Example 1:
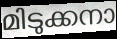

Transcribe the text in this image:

മിടുക്കനാ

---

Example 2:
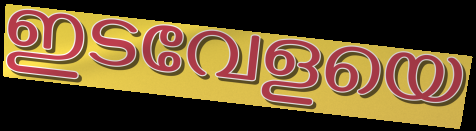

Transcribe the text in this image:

ഇടവേളയെ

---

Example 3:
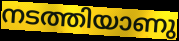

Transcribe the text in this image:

നടത്തിയാണു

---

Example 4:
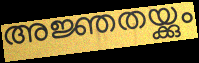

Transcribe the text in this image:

അജ്ഞതയ്ക്കും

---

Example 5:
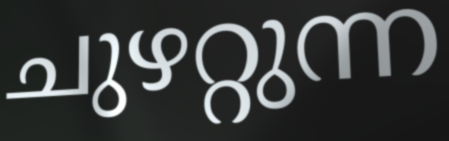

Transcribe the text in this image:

ചുഴറ്റുന്ന